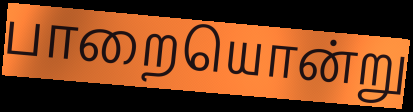
பாறையொன்று